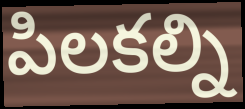
పిలకల్ని